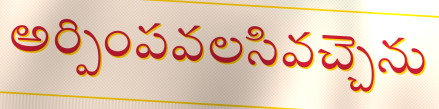
అర్పింపవలసివచ్చెను